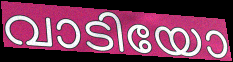
വാടിയോ